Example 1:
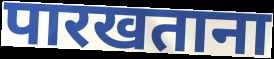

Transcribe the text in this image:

पारखताना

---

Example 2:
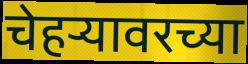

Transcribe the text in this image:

चेहर्‍यावरच्या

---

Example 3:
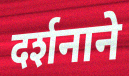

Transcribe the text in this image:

दर्शनाने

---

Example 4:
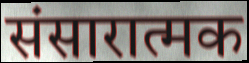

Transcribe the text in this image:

संसारात्मक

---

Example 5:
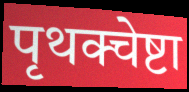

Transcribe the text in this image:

पृथक्चेष्टा